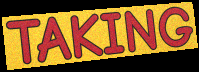
TAKING